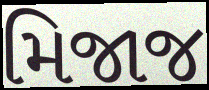
મિજાજ